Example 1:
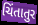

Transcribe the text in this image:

ચિંતાતુર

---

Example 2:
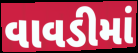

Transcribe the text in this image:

વાવડીમાં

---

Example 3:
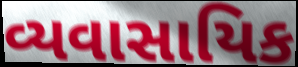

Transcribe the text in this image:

વ્યવાસાયિક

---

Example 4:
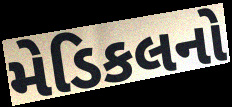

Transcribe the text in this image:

મેડિકલનો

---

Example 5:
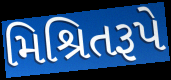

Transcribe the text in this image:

મિશ્રિતરૂપે